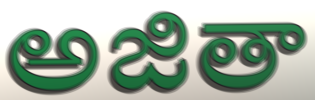
అజితా